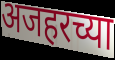
अजहरच्या